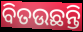
ବିତଉଛନ୍ତି